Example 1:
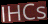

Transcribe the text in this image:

IHCs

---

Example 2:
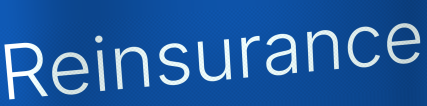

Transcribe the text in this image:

Reinsurance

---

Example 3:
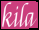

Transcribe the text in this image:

kila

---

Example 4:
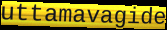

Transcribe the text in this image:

uttamavagide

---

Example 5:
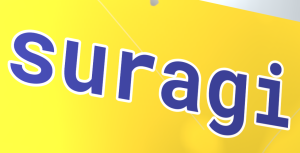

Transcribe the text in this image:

suragi